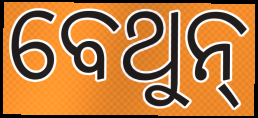
ବେଥୁନ୍